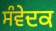
ਸੰਵੇਦਕ